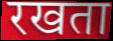
रखता